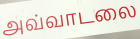
அவ்வாடலை